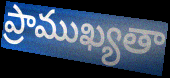
ప్రాముఖ్యతా